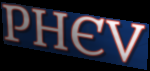
PHEV